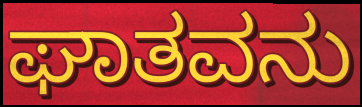
ಘಾತವನು